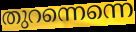
തുറന്നെന്നെ